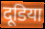
दूडिया